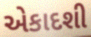
એકાદશી